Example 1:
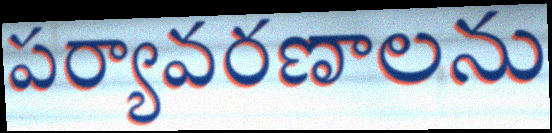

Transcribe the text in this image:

పర్యావరణాలను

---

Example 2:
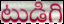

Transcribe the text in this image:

టుడిగి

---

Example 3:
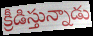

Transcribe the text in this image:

క్రీడిస్తున్నాడు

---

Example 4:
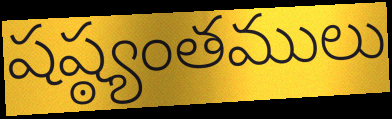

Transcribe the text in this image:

షష్ఠ్యంతములు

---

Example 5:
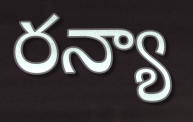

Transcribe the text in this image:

రన్యా